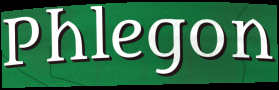
Phlegon